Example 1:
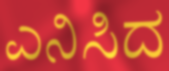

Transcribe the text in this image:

ಎನಿಸಿದ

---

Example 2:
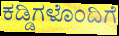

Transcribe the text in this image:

ಕಡ್ಡಿಗಳೊಂದಿಗೆ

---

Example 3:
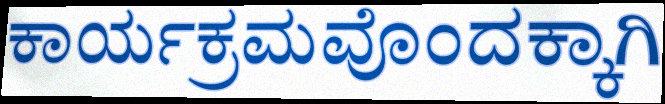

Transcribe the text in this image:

ಕಾರ್ಯಕ್ರಮವೊಂದಕ್ಕಾಗಿ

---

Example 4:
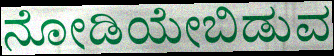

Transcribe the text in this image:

ನೋಡಿಯೇಬಿಡುವ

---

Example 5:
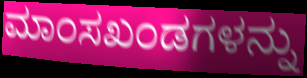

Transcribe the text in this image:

ಮಾಂಸಖಂಡಗಳನ್ನು